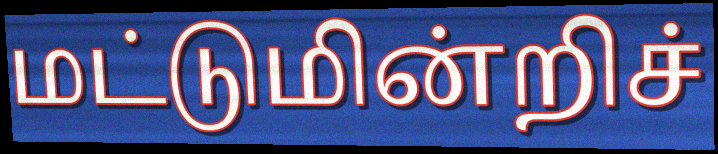
மட்டுமின்றிச்